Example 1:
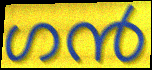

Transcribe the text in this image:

ഗൻ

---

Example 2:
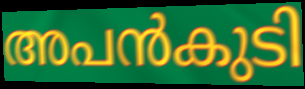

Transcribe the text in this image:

അപൻകുടി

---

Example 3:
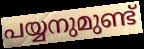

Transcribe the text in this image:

പയ്യനുമുണ്ട്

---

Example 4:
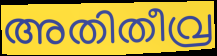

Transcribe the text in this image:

അതിതീവ്ര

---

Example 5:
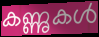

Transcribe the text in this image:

കണ്ണുകൾ